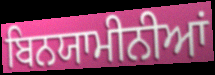
ਬਿਨਯਾਮੀਨੀਆਂ